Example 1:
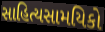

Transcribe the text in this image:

સાહિત્યસામયિકો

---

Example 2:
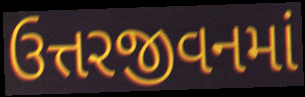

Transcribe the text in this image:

ઉત્તરજીવનમાં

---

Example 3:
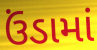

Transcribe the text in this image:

ઉંડામાં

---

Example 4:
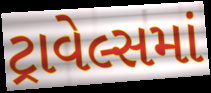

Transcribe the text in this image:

ટ્રાવેલ્સમાં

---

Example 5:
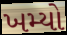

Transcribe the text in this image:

ખમ્યો